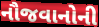
નૌજવાનોની